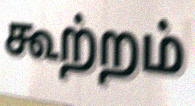
கூற்றம்